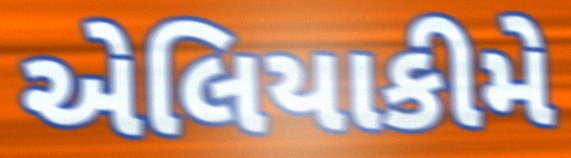
એલિયાકીમે